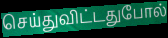
செய்துவிட்டதுபோல்